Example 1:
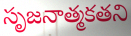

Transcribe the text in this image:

సృజనాత్మకతని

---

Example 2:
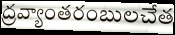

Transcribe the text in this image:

ద్రవ్యాంతరంబులచేత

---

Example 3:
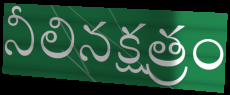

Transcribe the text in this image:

నీలినక్షత్రం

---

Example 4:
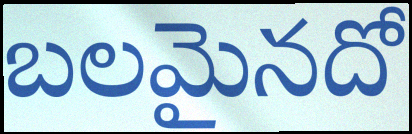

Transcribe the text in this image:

బలమైనదో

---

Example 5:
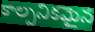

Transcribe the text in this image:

కాల్పనికమైన